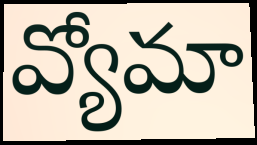
వ్యోమా